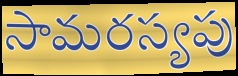
సామరస్యపు